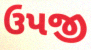
ઉપજી